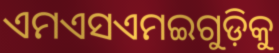
ଏମଏସଏମଇଗୁଡ଼ିକୁ